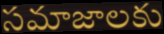
సమాజాలకు